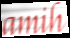
amih